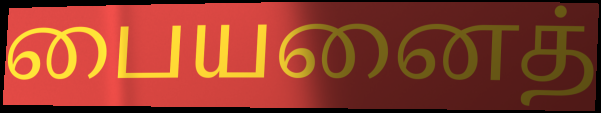
பையனைத்